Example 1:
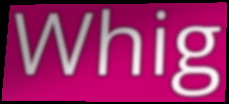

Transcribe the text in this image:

Whig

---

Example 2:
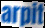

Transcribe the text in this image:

arpit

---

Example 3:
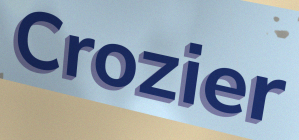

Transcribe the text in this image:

Crozier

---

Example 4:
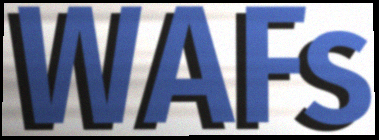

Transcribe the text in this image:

WAFs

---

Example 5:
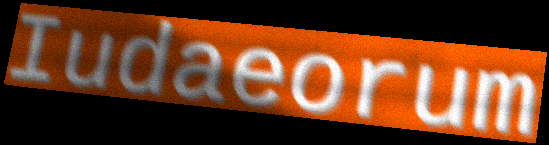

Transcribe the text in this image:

Iudaeorum